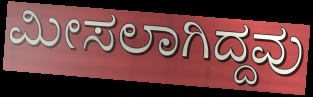
ಮೀಸಲಾಗಿದ್ದವು